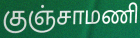
குஞ்சாமணி